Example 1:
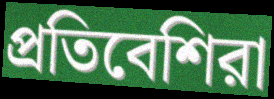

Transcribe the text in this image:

প্রতিবেশিরা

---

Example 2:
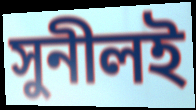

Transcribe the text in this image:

সুনীলই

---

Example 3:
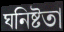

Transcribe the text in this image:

ঘনিষ্টতা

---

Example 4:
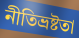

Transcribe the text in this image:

নীতিভ্রষ্টতা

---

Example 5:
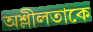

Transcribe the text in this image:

অশ্লীলতাকে